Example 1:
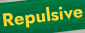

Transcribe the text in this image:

Repulsive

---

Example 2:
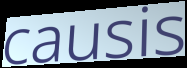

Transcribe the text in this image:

causis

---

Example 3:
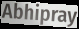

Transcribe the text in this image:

Abhipray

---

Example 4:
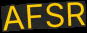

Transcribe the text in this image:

AFSR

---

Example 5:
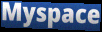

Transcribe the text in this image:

Myspace